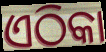
ଏଠିକା